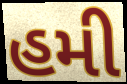
હમી